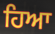
ਹਿਆ